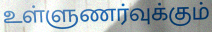
உள்ளுணர்வுக்கும்